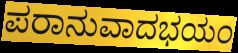
ಪರಾನುವಾದಭಯಂ